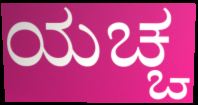
ಯಚ್ಚ